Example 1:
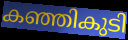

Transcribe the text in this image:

കഞ്ഞികുടി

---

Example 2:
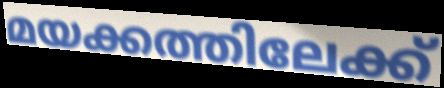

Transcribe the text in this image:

മയക്കത്തിലേക്ക്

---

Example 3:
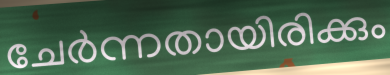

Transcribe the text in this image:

ചേർന്നതായിരിക്കും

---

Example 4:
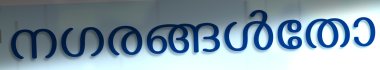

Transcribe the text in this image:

നഗരങ്ങൾതോ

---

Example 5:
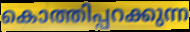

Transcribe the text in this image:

കൊത്തിപ്പറക്കുന്ന